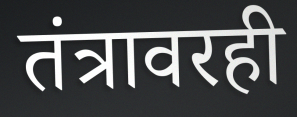
तंत्रावरही